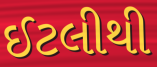
ઈટલીથી